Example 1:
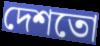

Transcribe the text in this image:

দেশতো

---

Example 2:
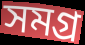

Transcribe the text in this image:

সমগ্ৰ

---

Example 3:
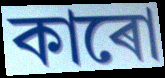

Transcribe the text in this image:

কাৰো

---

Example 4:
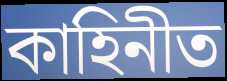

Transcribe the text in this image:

কাহিনীত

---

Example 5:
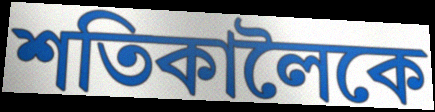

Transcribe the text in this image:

শতিকালৈকে